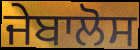
ਜੇਬਾਲੋਸ